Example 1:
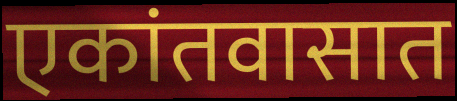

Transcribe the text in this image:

एकांतवासात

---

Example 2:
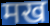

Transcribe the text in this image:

मख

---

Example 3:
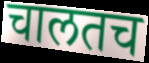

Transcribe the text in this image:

चालतच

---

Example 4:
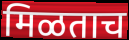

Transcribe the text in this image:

मिळताच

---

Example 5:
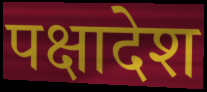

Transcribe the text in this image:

पक्षादेश